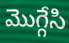
మొగ్గేసి